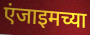
एंजाइमच्या